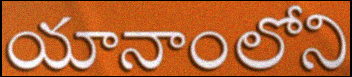
యానాంలోని